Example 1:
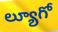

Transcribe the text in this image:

ల్యూగో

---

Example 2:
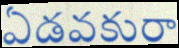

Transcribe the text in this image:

ఏడవకురా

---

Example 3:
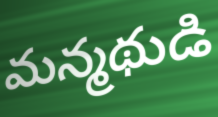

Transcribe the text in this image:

మన్మథుడి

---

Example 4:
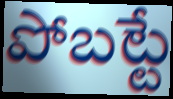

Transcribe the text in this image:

పోబట్టే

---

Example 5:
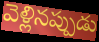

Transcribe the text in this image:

వెళ్లినప్పుడు